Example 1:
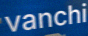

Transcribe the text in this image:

vanchi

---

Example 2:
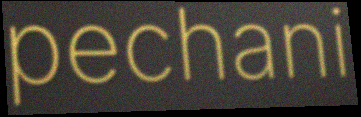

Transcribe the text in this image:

pechani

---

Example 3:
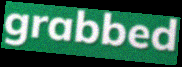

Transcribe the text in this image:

grabbed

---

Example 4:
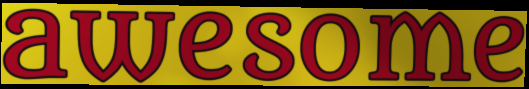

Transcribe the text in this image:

awesome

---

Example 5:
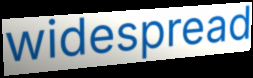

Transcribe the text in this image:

widespread